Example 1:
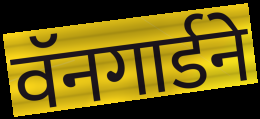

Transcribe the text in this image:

वॅनगार्डने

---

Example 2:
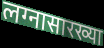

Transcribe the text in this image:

लग्नासारख्या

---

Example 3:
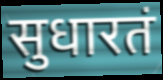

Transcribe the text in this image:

सुधारतं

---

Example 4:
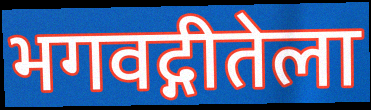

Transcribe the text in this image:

भगवद्गीतेला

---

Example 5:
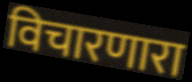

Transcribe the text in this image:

विचारणारा